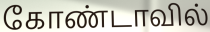
கோண்டாவில்